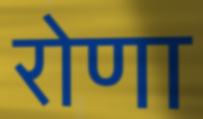
रोणा